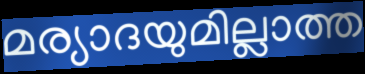
മര്യാദയുമില്ലാത്ത